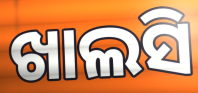
ଖାଲସି